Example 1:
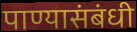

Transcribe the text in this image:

पाण्यासंबंधी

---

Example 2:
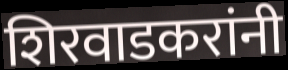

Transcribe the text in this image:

शिरवाडकरांनी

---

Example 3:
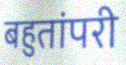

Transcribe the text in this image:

बहुतांपरी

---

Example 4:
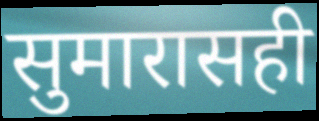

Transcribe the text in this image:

सुमारासही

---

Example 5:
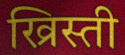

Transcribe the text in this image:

ख्रिस्ती